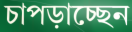
চাপড়াচ্ছেন